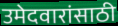
उमेदवारांसाठी